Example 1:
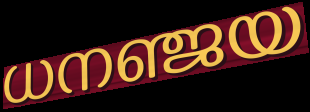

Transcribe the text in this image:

ധനഞ്ജയ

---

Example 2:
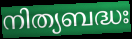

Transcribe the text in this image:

നിത്യബദ്ധഃ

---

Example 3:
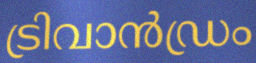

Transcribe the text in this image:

ട്രിവാൻഡ്രം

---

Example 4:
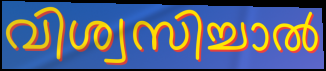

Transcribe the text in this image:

വിശ്വസിച്ചാൽ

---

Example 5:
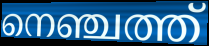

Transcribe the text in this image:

നെഞ്ചത്ത്